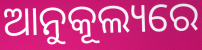
ଆନୁକୂଲ୍ୟରେ